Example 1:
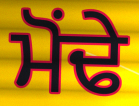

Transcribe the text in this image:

ਮੋਂਢੇ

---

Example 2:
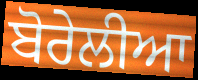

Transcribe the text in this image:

ਬੋਰੇਲੀਆ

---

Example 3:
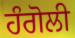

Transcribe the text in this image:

ਹੰਗੋਲੀ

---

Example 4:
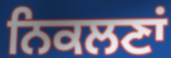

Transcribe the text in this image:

ਨਿਕਲਣਾਂ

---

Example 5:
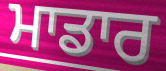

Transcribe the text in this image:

ਮਾਡਾਰ